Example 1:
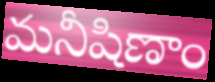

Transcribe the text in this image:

మనీషిణాం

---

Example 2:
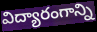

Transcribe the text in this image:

విద్యారంగాన్ని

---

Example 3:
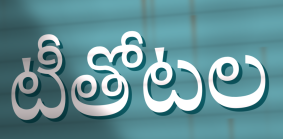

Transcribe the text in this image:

టీతోటల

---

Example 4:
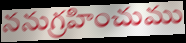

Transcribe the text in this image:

ననుగ్రహించుము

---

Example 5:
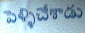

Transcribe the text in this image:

పెళ్ళిచేశాడు